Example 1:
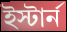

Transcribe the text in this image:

ইস্টার্ন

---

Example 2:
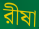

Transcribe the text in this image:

রীষা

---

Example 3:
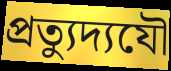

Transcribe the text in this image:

প্রত্যুদ্যযৌ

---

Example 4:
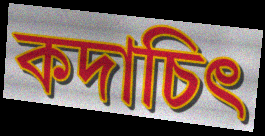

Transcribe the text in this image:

কদাচিৎ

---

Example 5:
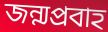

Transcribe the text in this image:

জন্মপ্রবাহ